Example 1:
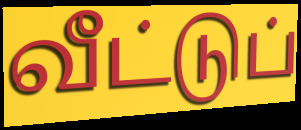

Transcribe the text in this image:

வீட்டுப்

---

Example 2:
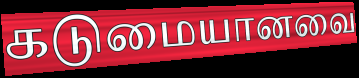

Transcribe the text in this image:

கடுமையானவை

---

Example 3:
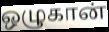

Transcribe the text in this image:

ஒழுகான்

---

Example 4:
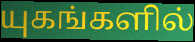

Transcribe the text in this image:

யுகங்களில்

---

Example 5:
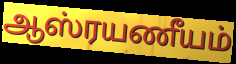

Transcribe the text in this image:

ஆஸ்ரயணீயம்